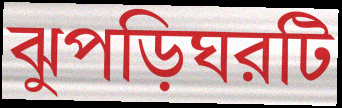
ঝুপড়িঘরটি